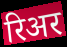
रिअर